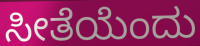
ಸೀತೆಯೆಂದು